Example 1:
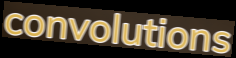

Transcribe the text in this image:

convolutions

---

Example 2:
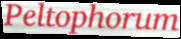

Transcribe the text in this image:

Peltophorum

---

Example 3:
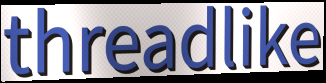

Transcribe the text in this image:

threadlike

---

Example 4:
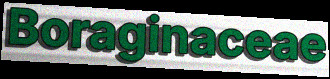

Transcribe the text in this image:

Boraginaceae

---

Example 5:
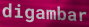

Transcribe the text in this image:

digambar